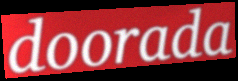
doorada